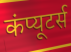
कंप्यूटर्स